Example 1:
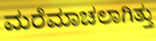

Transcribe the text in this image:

ಮರೆಮಾಚಲಾಗಿತ್ತು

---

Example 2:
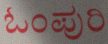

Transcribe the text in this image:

ಓಂಪುರಿ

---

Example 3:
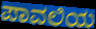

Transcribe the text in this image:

ಪಾವಲಿಯ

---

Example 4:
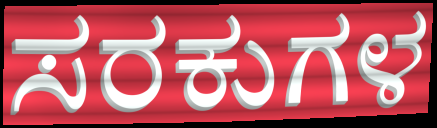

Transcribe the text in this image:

ಸರಕುಗಳ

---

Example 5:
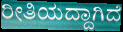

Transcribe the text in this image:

ರೀತಿಯದ್ದಾಗಿದೆ